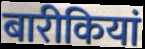
बारीकियां